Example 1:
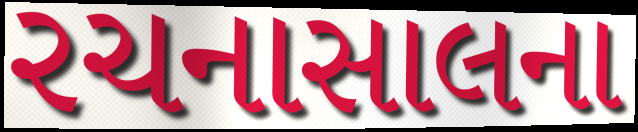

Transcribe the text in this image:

રચનાસાલના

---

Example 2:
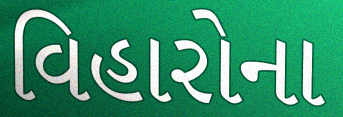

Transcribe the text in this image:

વિહારોના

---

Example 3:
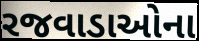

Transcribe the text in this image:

રજવાડાઓના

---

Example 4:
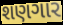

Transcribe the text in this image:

શણગાર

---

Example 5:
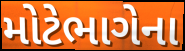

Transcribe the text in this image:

મોટેભાગેના